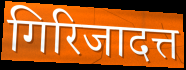
गिरिजादत्त